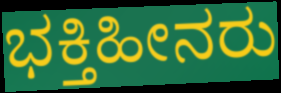
ಭಕ್ತಿಹೀನರು